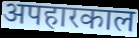
अपहारकाल